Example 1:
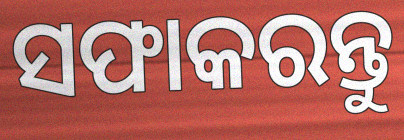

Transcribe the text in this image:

ସଫାକରନ୍ତୁ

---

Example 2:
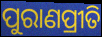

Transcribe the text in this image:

ପୁରାଣପ୍ରୀତି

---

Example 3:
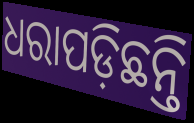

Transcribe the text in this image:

ଧରାପଡ଼ିଛନ୍ତି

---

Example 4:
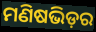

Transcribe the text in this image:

ମଣିଷଭିଡ଼ର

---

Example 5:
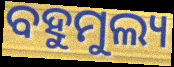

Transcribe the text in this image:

ବହୁମୁଲ୍ୟ